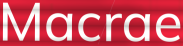
Macrae